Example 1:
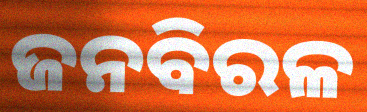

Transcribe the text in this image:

ଜନବିରଳ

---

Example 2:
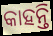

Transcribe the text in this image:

କାହନ୍ତି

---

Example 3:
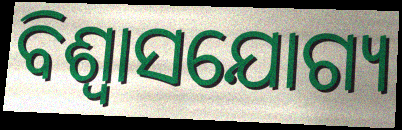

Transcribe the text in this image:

ବିଶ୍ବାସଯୋଗ୍ୟ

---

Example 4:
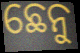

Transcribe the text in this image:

ଛେନୁ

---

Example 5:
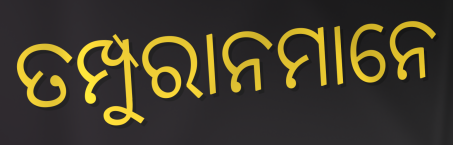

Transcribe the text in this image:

ତମ୍ପୁରାନମାନେ